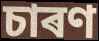
চাৰণ